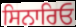
ਸਿਨਾਰਿਓ